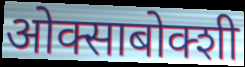
ओक्साबोक्शी